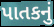
પાતકનું